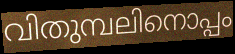
വിതുമ്പലിനൊപ്പം